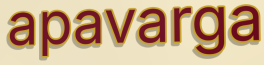
apavarga